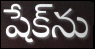
షేక్‌ను